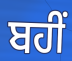
ਬਹੀਂ